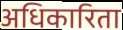
अधिकारिता